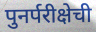
पुनर्परीक्षेची